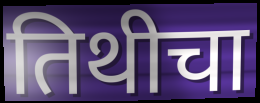
तिथीचा